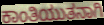
ಕಾಂತಿಯುತನಾಗಿ